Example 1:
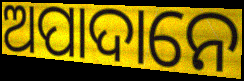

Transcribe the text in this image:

ଅପାଦାନେ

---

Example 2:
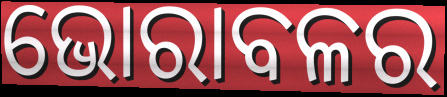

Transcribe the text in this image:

ଭୋରାବଳର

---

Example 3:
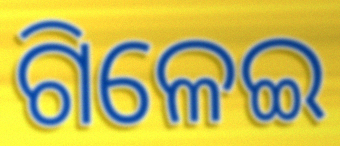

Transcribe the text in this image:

ଗିଳେଇ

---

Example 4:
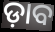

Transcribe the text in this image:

ଡ଼ାବ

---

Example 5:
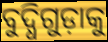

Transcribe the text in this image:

ବୁଦ୍ଧିଗୁଡ଼ାକୁ